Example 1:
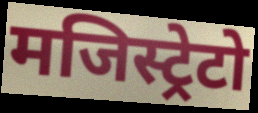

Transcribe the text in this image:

मजिस्ट्रेटो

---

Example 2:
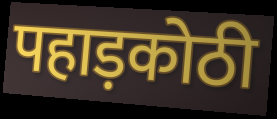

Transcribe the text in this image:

पहाड़कोठी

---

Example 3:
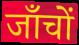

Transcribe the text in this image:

जाँचों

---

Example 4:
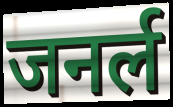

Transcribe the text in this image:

जनर्ल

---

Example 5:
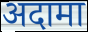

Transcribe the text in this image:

अदामा